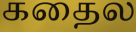
கதைல